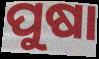
ପୁଷା